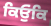
ਕਿਓੁਂਕਿ